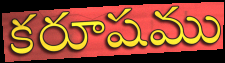
కరూషము